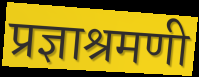
प्रज्ञाश्रमणी